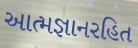
આત્મજ્ઞાનરહિત